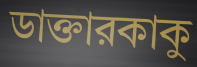
ডাক্তারকাকু